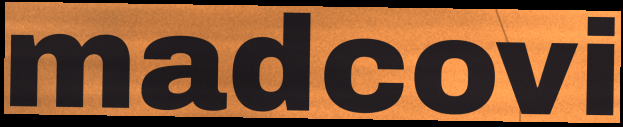
madcovi